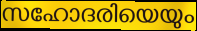
സഹോദരിയെയും